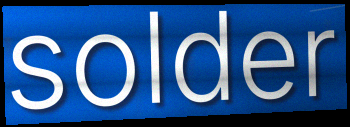
solder